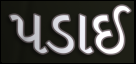
પડાઈ